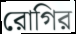
রোগির